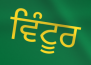
ਵਿੰਟੂਰ